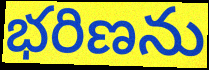
భరిణను